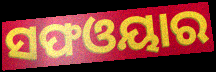
ସଫଓୟାର